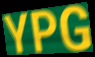
YPG